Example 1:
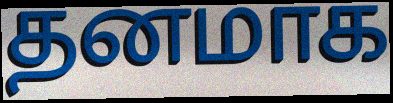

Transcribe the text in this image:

தனமாக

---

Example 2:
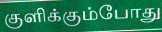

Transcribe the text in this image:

குளிக்கும்போது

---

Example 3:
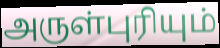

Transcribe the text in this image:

அருள்புரியும்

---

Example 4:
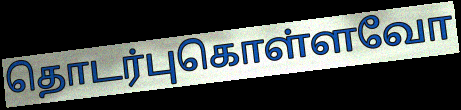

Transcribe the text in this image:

தொடர்புகொள்ளவோ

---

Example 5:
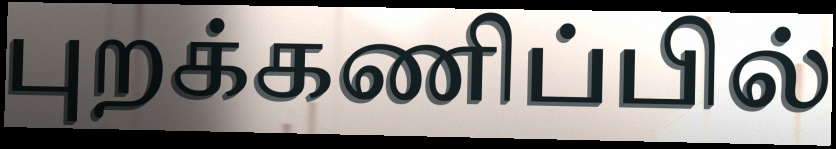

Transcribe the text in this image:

புறக்கணிப்பில்